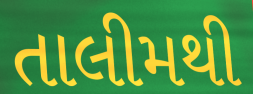
તાલીમથી